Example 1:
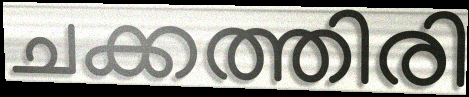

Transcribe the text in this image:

ചക്കത്തിരി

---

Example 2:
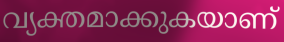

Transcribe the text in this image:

വ്യക്തമാക്കുകയാണ്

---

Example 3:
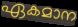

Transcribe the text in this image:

ഏകമാന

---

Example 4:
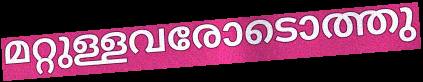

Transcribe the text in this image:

മറ്റുള്ളവരോടൊത്തു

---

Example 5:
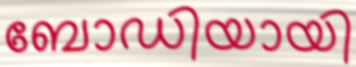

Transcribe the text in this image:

ബോഡിയായി